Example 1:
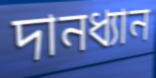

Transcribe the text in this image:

দানধ্যান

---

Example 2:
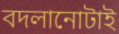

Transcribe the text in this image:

বদলানোটাই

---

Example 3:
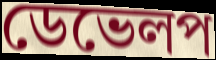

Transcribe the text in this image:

ডেভেলপ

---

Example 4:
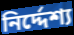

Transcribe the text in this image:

নির্দ্দেশ্য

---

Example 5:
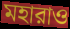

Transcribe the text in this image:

মহারাও